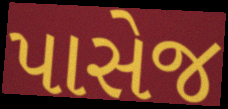
પાસેજ